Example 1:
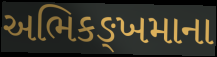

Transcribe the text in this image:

અભિકઙ્ખમાના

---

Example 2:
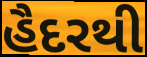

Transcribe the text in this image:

હૈદરથી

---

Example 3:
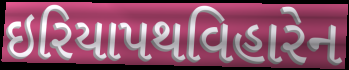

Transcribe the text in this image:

ઇરિયાપથવિહારેન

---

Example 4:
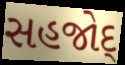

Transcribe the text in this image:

સહજોદ્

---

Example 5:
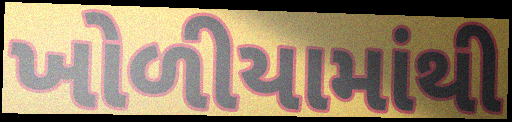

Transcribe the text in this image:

ખોળીયામાંથી